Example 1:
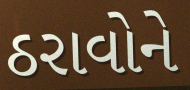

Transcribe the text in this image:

ઠરાવોને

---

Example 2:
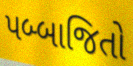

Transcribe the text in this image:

પબ્બાજિતો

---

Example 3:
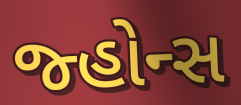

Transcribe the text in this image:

જ્હોન્સ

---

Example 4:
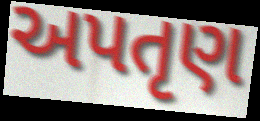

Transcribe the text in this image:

અપતૃણ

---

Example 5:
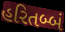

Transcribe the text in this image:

હરિતબ્બં